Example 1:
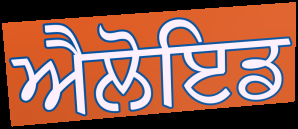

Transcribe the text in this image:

ਐਲੋਇਡ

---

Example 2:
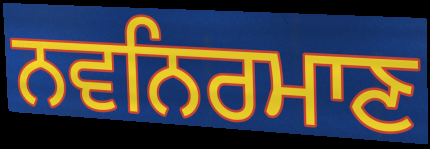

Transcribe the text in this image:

ਨਵਨਿਰਮਾਣ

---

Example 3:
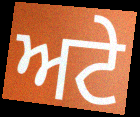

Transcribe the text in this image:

ਅਟੇ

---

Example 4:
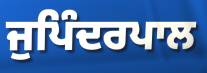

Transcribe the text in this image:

ਜੁਪਿੰਦਰਪਾਲ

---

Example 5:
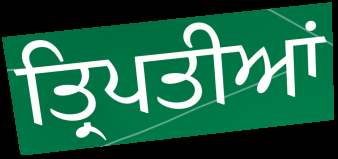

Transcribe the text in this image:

ਤ੍ਰਿਪਤੀਆਂ